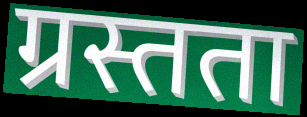
ग्रस्तता